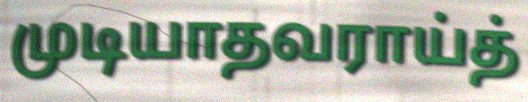
முடியாதவராய்த்